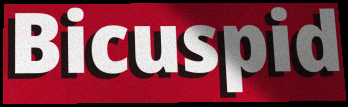
Bicuspid